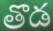
తొడ